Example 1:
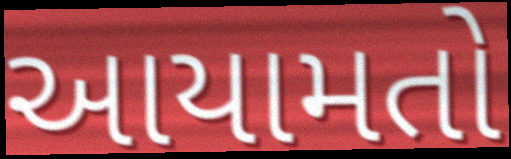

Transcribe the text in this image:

આયામતો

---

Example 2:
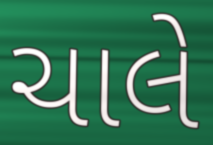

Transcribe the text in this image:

ચાલે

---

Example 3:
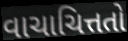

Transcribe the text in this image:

વાચાચિત્તતો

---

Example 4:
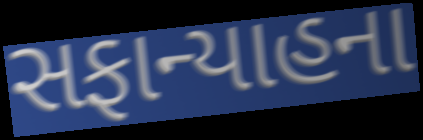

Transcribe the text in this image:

સફાન્યાહના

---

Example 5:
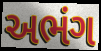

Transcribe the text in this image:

અભંગ